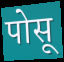
पोसू